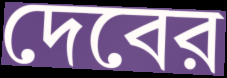
দেবের